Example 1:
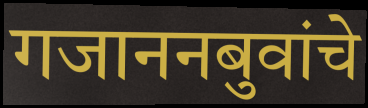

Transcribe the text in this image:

गजाननबुवांचे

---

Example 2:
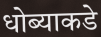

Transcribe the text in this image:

धोब्याकडे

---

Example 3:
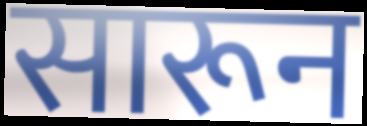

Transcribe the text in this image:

सारून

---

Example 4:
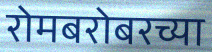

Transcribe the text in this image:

रोमबरोबरच्या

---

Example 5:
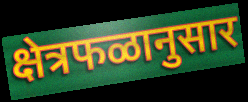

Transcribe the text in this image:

क्षेत्रफळानुसार